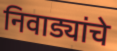
निवाड्यांचे